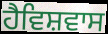
ਹੈਵਿਸ਼ਵਾਸ